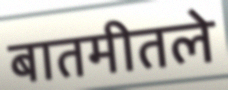
बातमीतले